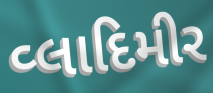
વ્લાદિમીર